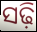
ସଢ଼ି